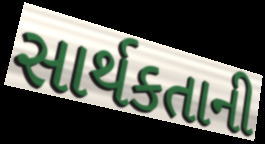
સાર્થકતાની